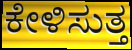
ಕೇಳಿಸುತ್ತ